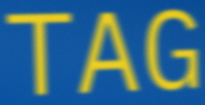
TAG